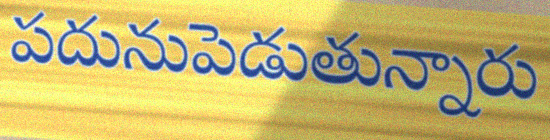
పదునుపెడుతున్నారు